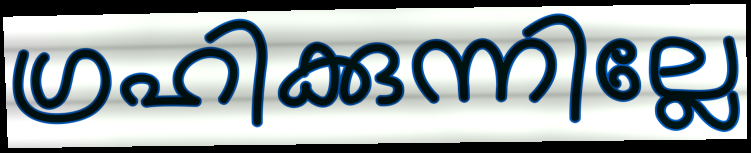
ഗ്രഹിക്കുന്നില്ലേ